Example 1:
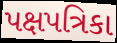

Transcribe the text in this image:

પક્ષપત્રિકા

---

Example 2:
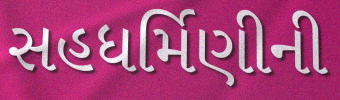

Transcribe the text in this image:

સહધર્મિણીની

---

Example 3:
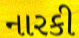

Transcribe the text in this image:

નારકી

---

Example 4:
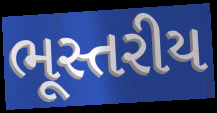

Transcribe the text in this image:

ભૂસ્તરીય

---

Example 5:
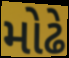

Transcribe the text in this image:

મોઢે